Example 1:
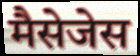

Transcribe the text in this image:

मैसेजेस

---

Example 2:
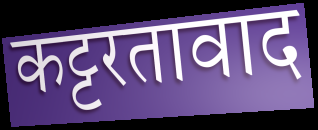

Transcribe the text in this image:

कट्टरतावाद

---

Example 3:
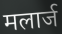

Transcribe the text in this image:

मलार्ज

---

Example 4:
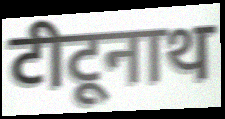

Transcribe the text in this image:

टीटूनाथ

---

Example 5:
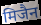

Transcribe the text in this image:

मिजैन